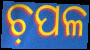
ଚ଼ପଳ